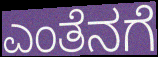
ಎಂತೆನಗೆ